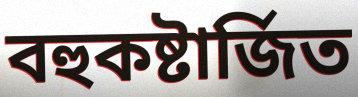
বহুকষ্টার্জিত